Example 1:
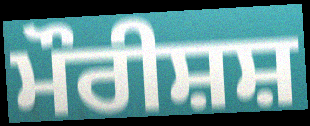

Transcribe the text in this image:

ਮੌਰੀਸ਼ਸ਼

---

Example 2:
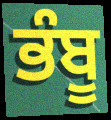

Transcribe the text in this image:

ਭੰਬੂ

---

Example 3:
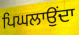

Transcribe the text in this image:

ਪਿਘਲਾਉਂਦਾ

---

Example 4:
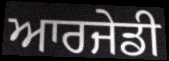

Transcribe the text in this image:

ਆਰਜੇਡੀ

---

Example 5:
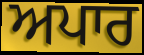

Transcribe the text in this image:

ਅਪਾਰ